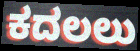
ಕದಲಲು